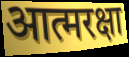
आत्मरक्षा